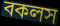
বকলস